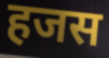
हजस